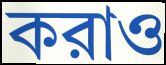
করাও